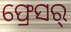
ଫ୍ରେସର୍